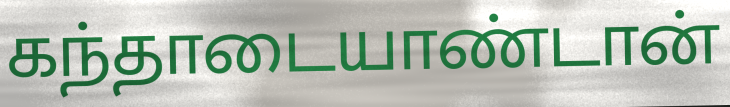
கந்தாடையாண்டான்